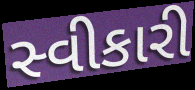
સ્વીકારી